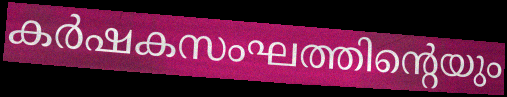
കർഷകസംഘത്തിന്റെയും